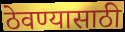
ठेवण्यासाठी